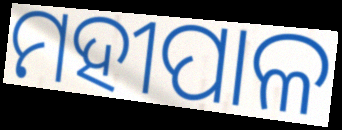
ମହୀପାଳ